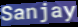
Sanjay